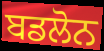
ਬਡਲੋਨ